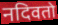
नदिवतो